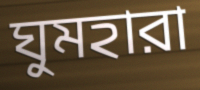
ঘুমহারা